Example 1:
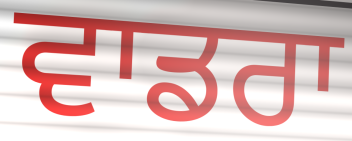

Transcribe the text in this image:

ਵਾਡਰਾ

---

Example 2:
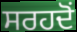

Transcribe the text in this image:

ਸਰਹਦੋਂ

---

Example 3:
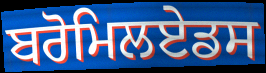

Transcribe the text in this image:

ਬਰੋਮਿਲਏਡਸ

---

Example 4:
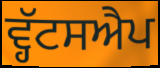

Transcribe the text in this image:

ਵ੍ਹੱਟਸਐਪ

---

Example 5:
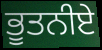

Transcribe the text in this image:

ਭੂਤਨੀਏ